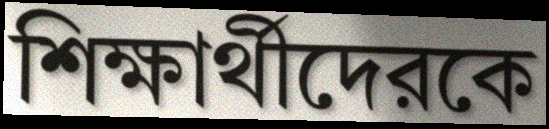
শিক্ষার্থীদেরকে